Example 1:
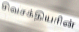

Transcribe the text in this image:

சிவசக்தியரின்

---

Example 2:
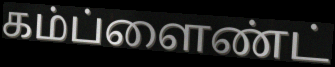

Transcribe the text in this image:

கம்ப்ளைண்ட்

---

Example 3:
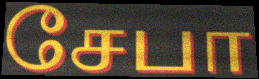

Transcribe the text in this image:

சேபா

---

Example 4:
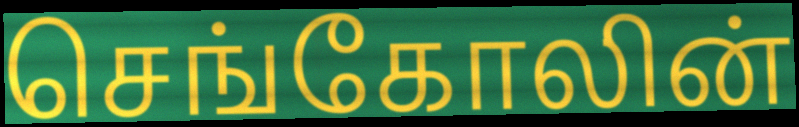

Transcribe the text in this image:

செங்கோலின்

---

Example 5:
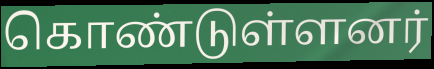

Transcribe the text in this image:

கொண்டுள்ளனர்